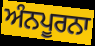
ਅੰਨਪੂਰਨਾ